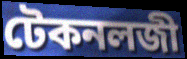
টেকনলজী